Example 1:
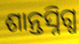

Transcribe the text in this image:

ଶାନ୍ତସ୍ନିଗ୍ଧ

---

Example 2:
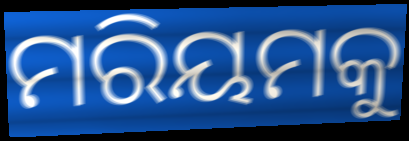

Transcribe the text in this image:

ମରିୟମକୁ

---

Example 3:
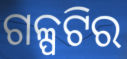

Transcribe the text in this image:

ଗଳ୍ପଟିର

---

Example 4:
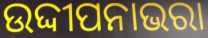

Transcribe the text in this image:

ଉଦ୍ଦୀପନାଭରା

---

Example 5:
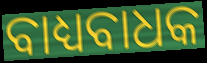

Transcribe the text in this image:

ବାଧ୍ୟବାଧକ